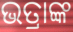
ଭତ୍ରାଙ୍କ